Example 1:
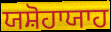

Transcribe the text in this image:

ਯਸ਼ੋਹਾਯਾਹ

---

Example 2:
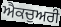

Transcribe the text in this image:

ਐਕਚੁਅਰੀ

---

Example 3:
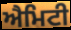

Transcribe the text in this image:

ਐਮਿਟੀ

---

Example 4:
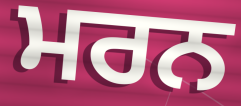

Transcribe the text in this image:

ਮਰਨ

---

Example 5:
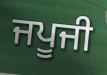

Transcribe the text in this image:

ਜਪੂਜੀ